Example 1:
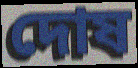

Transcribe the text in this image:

দোষ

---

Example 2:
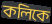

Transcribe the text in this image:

কলিকে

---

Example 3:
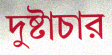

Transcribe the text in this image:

দুষ্টাচার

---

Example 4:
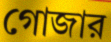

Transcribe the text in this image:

গোজার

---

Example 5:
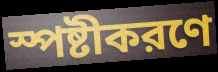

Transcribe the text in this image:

স্পষ্টীকরণে